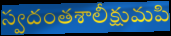
స్వదంతశాలీక్షుమపి